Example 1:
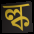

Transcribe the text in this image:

ল্ক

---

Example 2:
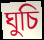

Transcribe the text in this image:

ঘুচি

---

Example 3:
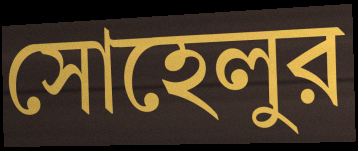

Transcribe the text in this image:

সোহেলুর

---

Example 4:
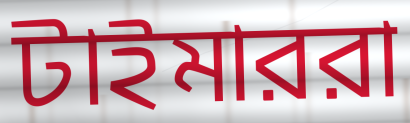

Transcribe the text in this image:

টাইমাররা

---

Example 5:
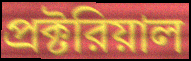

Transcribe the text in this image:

প্রক্টরিয়াল